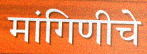
मांगिणीचे